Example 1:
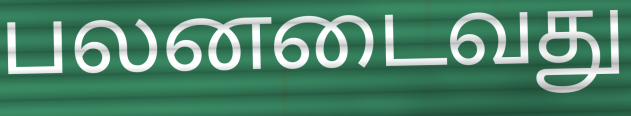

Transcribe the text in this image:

பலனடைவது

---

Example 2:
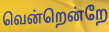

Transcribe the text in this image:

வென்றென்றே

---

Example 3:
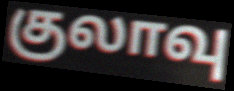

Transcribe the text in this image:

குலாவு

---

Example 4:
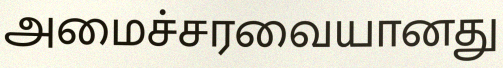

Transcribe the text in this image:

அமைச்சரவையானது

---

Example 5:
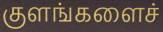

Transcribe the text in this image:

குளங்களைச்